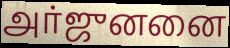
அர்ஜுனனை